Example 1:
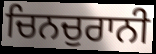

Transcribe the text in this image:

ਚਿਨਚੁਰਾਨੀ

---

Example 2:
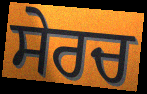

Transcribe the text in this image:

ਸੇਰਚ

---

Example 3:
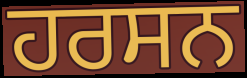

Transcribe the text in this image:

ਹਰਸਨ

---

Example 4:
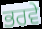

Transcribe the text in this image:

ਭਰਵੇ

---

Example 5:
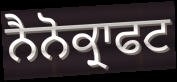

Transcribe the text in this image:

ਨੈਨੋਕ੍ਰਾਫਟ